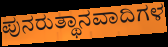
ಪುನರುತ್ಥಾನವಾದಿಗಳ